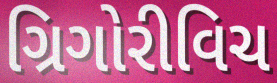
ગ્રિગોરીવિચ